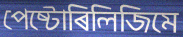
পেষ্টোৰিলিজিমে